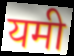
यमी